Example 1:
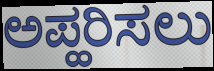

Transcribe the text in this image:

ಅಪ್ಹರಿಸಲು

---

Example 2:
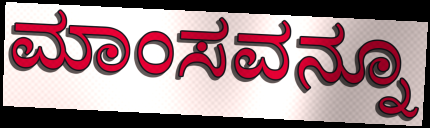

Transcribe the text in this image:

ಮಾಂಸವನ್ನೂ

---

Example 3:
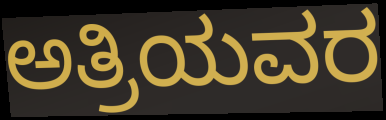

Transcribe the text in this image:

ಅತ್ರಿಯವರ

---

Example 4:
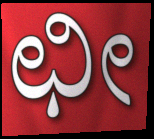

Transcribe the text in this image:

ಛೀ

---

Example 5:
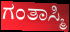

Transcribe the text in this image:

ಗಂತಾಸ್ಮಿ